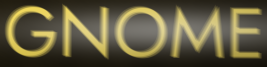
GNOME